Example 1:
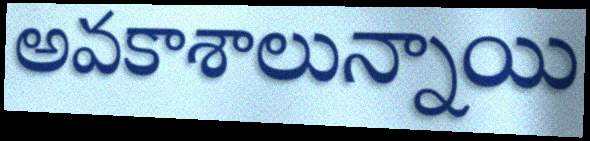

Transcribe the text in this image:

అవకాశాలున్నాయి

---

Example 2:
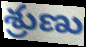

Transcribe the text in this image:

శ్రుణు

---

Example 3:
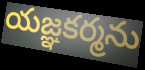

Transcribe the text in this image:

యజ్ఞకర్మను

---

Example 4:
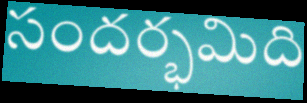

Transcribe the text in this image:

సందర్భమిది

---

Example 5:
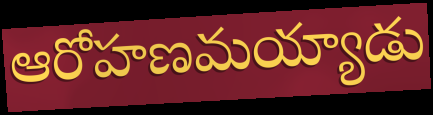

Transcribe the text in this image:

ఆరోహణమయ్యాడు